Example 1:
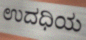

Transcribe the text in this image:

ಉದಧಿಯ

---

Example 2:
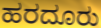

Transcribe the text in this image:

ಹರದೂರು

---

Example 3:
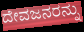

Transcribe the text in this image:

ದೇವಜನರನ್ನು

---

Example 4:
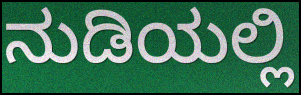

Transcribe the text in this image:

ನುಡಿಯಲ್ಲಿ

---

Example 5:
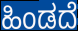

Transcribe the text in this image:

ಹಿಂಡದೆ